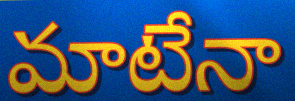
మాటేనా